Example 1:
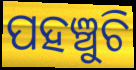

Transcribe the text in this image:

ପହଞ୍ଚୁଚି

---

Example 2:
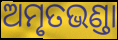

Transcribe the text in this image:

ଅମୃତଭଣ୍ଡା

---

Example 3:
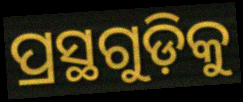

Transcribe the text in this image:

ପ୍ରସ୍ଥଗୁଡ଼ିକୁ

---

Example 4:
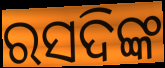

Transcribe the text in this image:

ରସଦିଙ୍କ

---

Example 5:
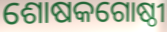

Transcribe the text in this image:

ଶୋଷକଗୋଷ୍ଠୀ